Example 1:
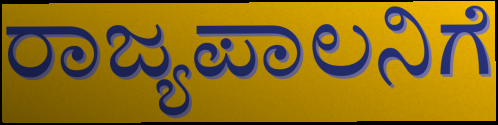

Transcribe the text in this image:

ರಾಜ್ಯಪಾಲನಿಗೆ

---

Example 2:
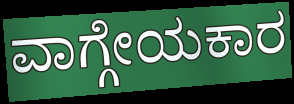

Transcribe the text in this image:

ವಾಗ್ಗೇಯಕಾರ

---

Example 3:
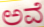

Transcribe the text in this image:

ಅವೆ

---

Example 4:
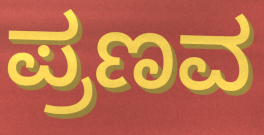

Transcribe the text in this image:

ಪ್ರಣವ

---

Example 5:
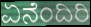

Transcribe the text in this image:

ಏನೆಂದಿರಿ